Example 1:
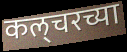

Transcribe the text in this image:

कल्चरच्या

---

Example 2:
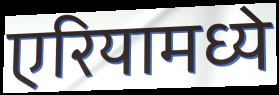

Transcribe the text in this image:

एरियामध्ये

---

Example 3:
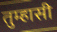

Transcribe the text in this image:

तुम्हासी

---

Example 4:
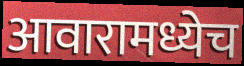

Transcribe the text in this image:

आवारामध्येच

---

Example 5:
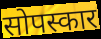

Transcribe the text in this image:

सोपस्कार